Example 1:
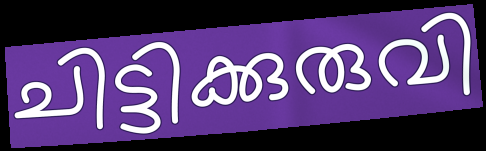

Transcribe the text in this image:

ചിട്ടിക്കുരുവി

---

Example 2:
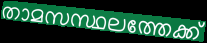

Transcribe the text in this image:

താമസസ്ഥലത്തേക്ക്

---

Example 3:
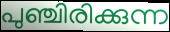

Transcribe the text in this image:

പുഞ്ചിരിക്കുന്ന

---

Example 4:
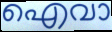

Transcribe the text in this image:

ഐവാ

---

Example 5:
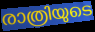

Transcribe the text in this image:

രാത്രിയുടെ